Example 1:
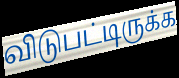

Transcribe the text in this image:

விடுபட்டிருக்க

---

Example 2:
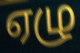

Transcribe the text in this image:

ஏழு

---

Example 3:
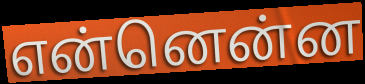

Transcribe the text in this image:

என்னென்ன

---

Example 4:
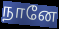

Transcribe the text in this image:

நானே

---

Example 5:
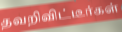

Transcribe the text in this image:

தவறிவிட்டீர்கள்